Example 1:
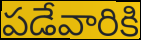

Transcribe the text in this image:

పడేవారికి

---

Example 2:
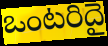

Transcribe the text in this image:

ఒంటరిదై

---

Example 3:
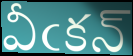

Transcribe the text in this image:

వీఁకన్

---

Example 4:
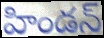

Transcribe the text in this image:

హిండన్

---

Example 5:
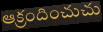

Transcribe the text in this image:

ఆక్రందించుచు